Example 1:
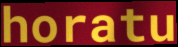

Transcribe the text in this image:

horatu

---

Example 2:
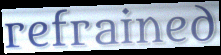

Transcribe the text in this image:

refrained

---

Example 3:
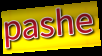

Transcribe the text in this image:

pashe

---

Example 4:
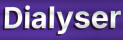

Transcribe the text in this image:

Dialyser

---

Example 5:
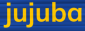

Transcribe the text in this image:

jujuba